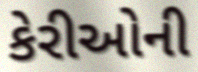
કેરીઓની